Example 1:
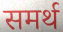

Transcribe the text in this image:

समर्थ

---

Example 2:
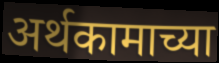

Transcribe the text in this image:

अर्थकामाच्या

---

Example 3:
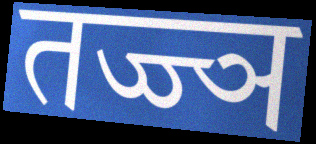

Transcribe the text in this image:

तज्ज्ञ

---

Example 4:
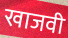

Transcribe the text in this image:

खाजवी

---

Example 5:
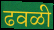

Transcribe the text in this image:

ढवळी